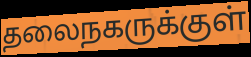
தலைநகருக்குள்